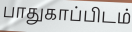
பாதுகாப்பிடம்